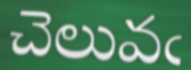
చెలువఁ